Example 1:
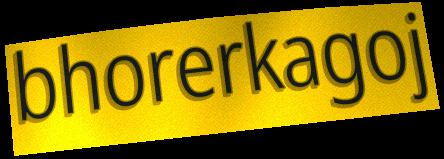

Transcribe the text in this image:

bhorerkagoj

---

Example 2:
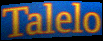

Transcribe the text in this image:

Talelo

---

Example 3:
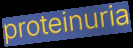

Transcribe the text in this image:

proteinuria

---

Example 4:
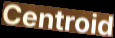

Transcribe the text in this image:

Centroid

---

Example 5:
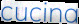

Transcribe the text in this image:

cucina